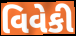
વિવેકી